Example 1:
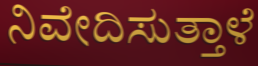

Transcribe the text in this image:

ನಿವೇದಿಸುತ್ತಾಳೆ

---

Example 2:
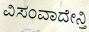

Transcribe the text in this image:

ವಿಸಂವಾದೇನ್ತಿ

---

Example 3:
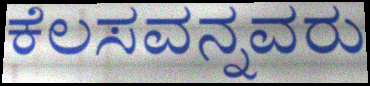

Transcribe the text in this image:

ಕೆಲಸವನ್ನವರು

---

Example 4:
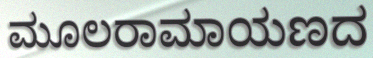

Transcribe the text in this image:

ಮೂಲರಾಮಾಯಣದ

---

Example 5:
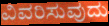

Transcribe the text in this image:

ವಿವರಿಸುವುದು